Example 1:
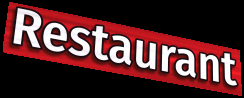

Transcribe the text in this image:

Restaurant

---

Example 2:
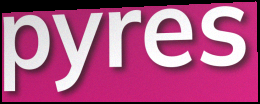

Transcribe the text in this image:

pyres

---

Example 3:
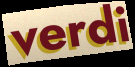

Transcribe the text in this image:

verdi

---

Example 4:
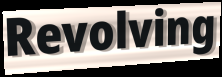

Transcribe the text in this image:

Revolving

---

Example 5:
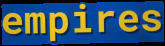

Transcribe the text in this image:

empires